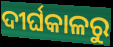
ଦୀର୍ଘକାଳରୁ